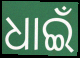
ଧାଇଁ